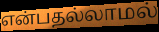
என்பதல்லாமல்